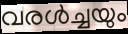
വരൾച്ചയും